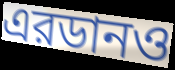
এরডানও